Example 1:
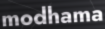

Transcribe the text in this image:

modhama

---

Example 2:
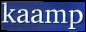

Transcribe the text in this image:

kaamp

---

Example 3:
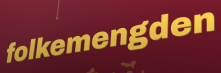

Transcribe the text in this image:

folkemengden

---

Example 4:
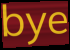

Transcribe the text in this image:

bye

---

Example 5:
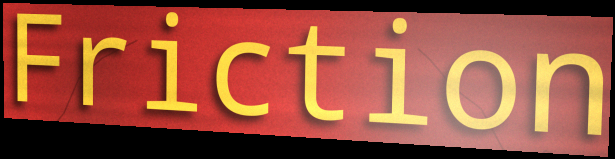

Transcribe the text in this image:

Friction